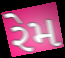
રેમ